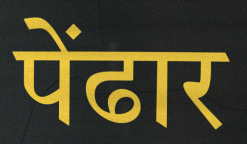
पेंढार